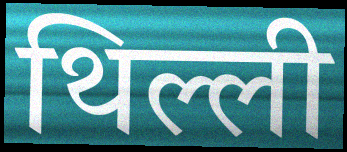
थिल्ली